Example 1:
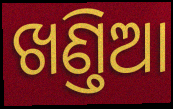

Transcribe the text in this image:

ଖଣ୍ତିଆ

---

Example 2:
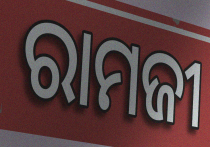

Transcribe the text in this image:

ରାମଜୀ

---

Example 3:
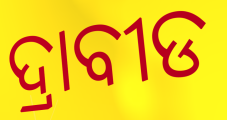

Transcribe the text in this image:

ଦ୍ରାବୀଡ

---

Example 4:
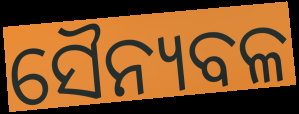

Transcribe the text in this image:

ସୈନ୍ୟବଳ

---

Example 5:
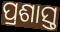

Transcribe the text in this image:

ପ୍ରଶାସ୍ତ